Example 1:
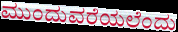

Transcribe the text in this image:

ಮುಂದುವರೆಯಲೆಂದು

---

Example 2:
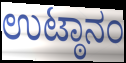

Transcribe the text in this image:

ಉಟ್ಠಾನಂ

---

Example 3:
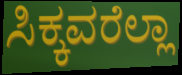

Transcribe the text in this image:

ಸಿಕ್ಕವರೆಲ್ಲಾ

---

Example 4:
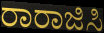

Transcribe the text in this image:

ರಾರಾಜಿಸಿ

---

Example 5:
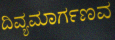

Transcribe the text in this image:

ದಿವ್ಯಮಾರ್ಗಣವ